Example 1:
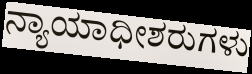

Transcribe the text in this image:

ನ್ಯಾಯಾಧೀಶರುಗಳು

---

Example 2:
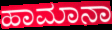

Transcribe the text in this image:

ಹಾಮಾನಾ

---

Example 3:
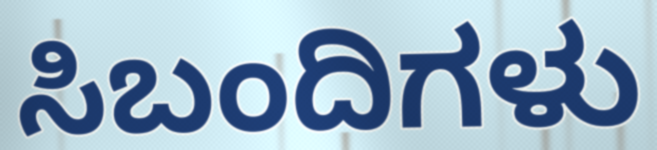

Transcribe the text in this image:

ಸಿಬಂದಿಗಳು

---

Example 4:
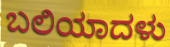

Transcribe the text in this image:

ಬಲಿಯಾದಳು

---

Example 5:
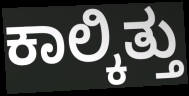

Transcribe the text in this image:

ಕಾಲ್ಕಿತ್ತು